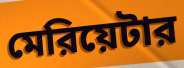
মেরিয়েটার